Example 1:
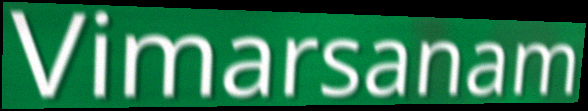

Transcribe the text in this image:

Vimarsanam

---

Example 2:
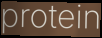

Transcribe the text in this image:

protein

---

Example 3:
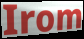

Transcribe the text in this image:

Irom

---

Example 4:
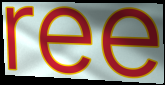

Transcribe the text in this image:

ree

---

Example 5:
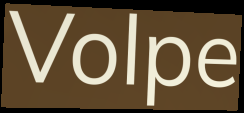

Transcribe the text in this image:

Volpe